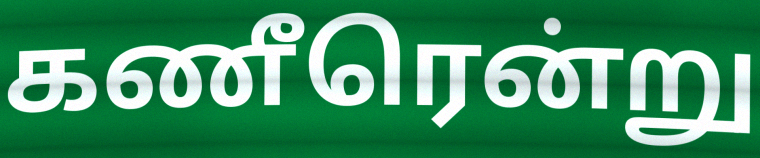
கணீரென்று